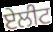
ਏਲੀਟ